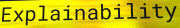
Explainability